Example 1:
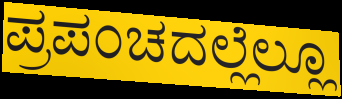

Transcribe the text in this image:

ಪ್ರಪಂಚದಲ್ಲೆಲ್ಲೂ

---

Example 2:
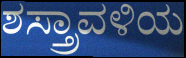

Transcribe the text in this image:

ಶಸ್ತ್ರಾವಳಿಯ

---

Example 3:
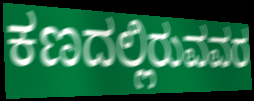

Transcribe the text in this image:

ಕಣದಲ್ಲಿರುವವರ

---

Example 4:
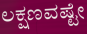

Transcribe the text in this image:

ಲಕ್ಷಣವಷ್ಟೇ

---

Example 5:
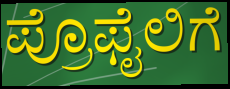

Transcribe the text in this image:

ಪ್ರೊಫೈಲಿಗೆ